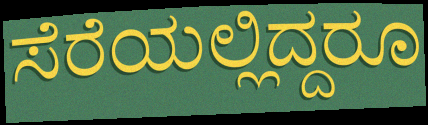
ಸೆರೆಯಲ್ಲಿದ್ದರೂ